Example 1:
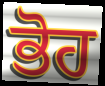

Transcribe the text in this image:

ਭੋਹ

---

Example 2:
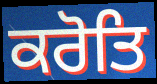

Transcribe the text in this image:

ਕਰੋਤਿ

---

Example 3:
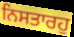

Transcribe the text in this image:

ਨਿਸਤਾਰਹੁ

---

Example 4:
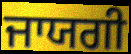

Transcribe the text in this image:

ਜਾਯਗੀ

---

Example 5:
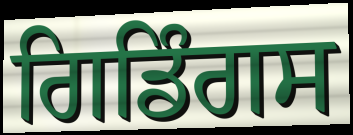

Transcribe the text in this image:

ਗਿਡਿੰਗਸ